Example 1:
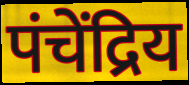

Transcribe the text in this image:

पंचेंद्रिय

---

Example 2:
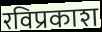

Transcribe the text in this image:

रविप्रकाश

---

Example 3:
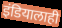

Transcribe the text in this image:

इंडियालाही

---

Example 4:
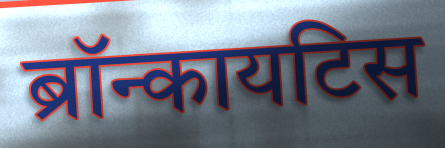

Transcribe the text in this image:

ब्रॉन्कायटिस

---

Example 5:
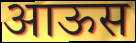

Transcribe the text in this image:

आऊस